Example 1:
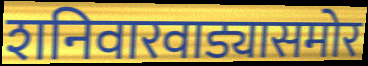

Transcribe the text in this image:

शनिवारवाड्यासमोर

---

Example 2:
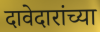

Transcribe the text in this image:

दावेदारांच्या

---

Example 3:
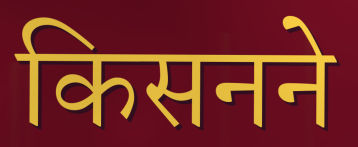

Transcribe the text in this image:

किसनने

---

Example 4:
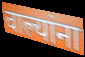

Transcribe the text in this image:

वाल्यांना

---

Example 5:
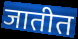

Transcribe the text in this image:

जातीत